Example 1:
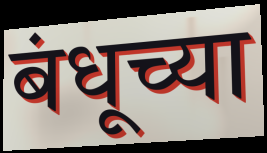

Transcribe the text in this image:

बंधूच्या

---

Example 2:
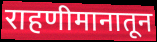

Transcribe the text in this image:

राहणीमानातून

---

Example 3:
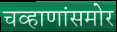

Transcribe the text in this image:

चव्हाणांसमोर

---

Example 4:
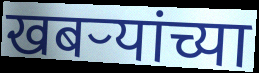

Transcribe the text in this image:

खबऱ्यांच्या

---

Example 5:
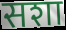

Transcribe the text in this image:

सशा